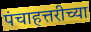
पंचाहत्तरीच्या